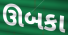
ઊબકા